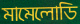
মামেলোডি